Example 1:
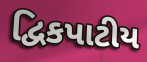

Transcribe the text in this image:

દ્વિકપાટીય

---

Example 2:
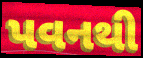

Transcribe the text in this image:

પવનથી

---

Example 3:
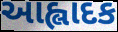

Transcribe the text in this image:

આહ્લાદક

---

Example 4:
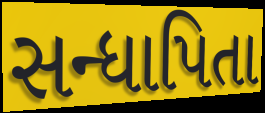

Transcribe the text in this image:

સન્ધાપિતા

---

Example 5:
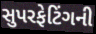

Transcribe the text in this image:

સુપરફેટિંગની